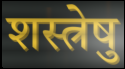
शस्त्रेषु